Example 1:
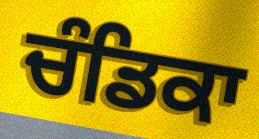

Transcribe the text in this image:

ਚੰਡਿਕਾ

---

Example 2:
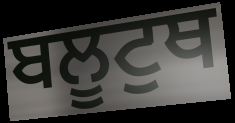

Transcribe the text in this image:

ਬਲੂਟੁਥ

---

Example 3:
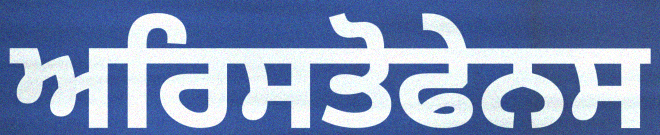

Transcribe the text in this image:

ਅਰਿਸਤੋਫੇਨਸ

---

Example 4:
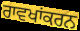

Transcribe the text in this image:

ਰਾਵਖਾਂਕਰਨ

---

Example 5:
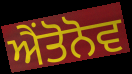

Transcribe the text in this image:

ਐਂਤੋਨੋਵ